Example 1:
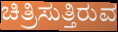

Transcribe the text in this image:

ಚಿತ್ರಿಸುತ್ತಿರುವ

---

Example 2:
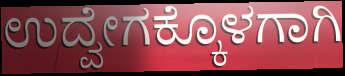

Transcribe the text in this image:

ಉದ್ವೇಗಕ್ಕೊಳಗಾಗಿ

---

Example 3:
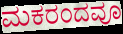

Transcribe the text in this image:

ಮಕರಂದವೂ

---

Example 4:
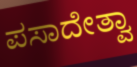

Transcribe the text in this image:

ಪಸಾದೇತ್ವಾ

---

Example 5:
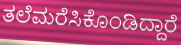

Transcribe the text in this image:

ತಲೆಮರೆಸಿಕೊಂಡಿದ್ದಾರೆ